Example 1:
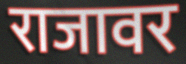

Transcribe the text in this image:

राजावर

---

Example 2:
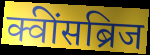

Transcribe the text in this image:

क्वींसब्रिज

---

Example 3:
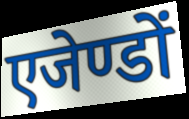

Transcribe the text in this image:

एजेण्डों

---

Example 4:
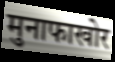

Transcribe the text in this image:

मुनाफाखोर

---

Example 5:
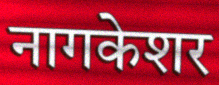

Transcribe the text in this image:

नागकेशर